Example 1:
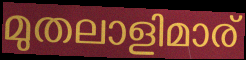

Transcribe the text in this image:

മുതലാളിമാര്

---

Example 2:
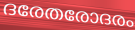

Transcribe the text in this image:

ദരേതരോദരം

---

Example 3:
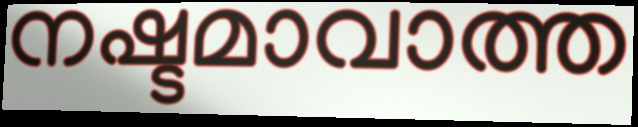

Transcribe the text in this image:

നഷ്ടമാവാത്ത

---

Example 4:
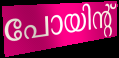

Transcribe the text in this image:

പോയിന്റ്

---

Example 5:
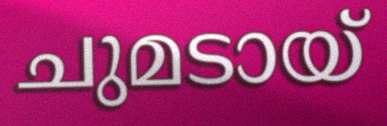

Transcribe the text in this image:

ചുമടായ്